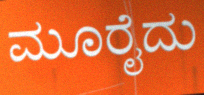
ಮೂರೈದು